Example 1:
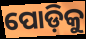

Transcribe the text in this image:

ପୋଡ଼ିକୁ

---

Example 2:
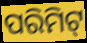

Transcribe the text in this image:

ପରିମିଟ୍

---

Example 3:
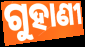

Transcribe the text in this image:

ଗୁହାଣୀ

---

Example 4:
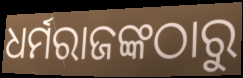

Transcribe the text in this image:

ଧର୍ମରାଜଙ୍କଠାରୁ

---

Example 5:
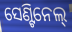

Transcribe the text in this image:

ସେଣ୍ଟିନେଲ୍